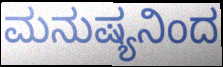
ಮನುಷ್ಯನಿಂದ